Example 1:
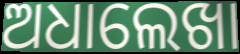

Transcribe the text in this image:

ଅଧାଲେଖା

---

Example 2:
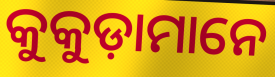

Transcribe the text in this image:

କୁକୁଡ଼ାମାନେ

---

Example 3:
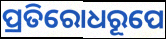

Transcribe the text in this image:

ପ୍ରତିରୋଧରୂପେ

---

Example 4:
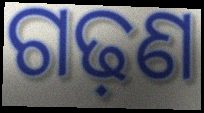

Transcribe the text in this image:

ଗଢ଼ଣ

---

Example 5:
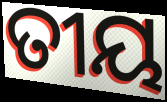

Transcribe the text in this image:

ତୀୟ